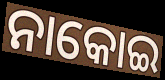
ନାକୋଇ